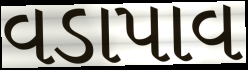
વડાપાવ